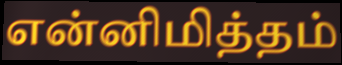
என்னிமித்தம்